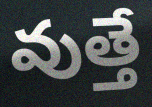
వుత్తే